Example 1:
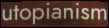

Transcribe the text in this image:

utopianism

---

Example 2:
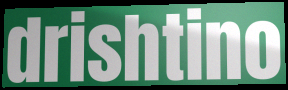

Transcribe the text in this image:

drishtino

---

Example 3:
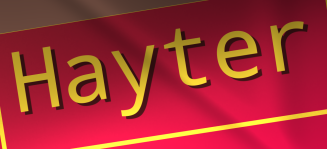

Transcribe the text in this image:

Hayter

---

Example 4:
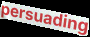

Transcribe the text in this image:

persuading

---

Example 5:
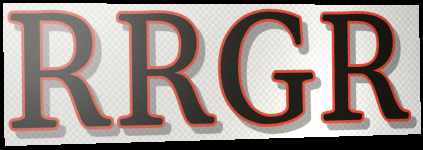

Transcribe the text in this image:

RRGR